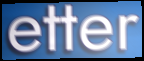
etter